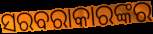
ସରବରାକାରଙ୍କର